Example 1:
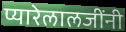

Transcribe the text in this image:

प्यारेलालजींनी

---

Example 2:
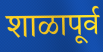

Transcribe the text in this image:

शाळापूर्व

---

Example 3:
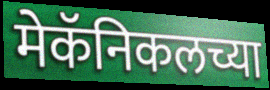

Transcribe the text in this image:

मेकॅनिकलच्या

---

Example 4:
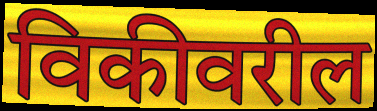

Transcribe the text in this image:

विकीवरील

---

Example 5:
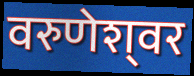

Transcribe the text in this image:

वरुणेश्वर